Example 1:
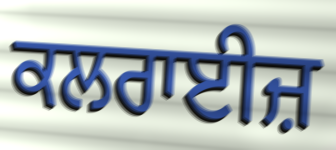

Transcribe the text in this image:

ਕਲਰਾਈਜ਼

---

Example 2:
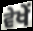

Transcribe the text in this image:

ਵੇਖੇਂ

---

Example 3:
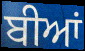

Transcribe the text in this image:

ਬੀਆਂ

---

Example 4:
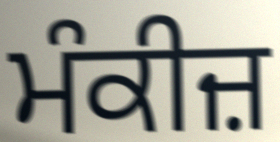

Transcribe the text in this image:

ਮੰਕੀਜ਼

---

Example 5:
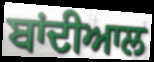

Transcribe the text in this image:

ਬਾਂਦੀਆਲ